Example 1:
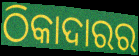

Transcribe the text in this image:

ଠିକାଦାରର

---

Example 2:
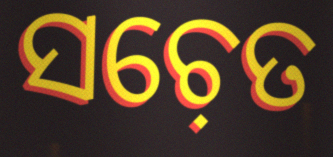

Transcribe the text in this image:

ସଚ଼େତ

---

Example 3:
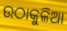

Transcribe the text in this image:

ଉଠାକୁଳିଆ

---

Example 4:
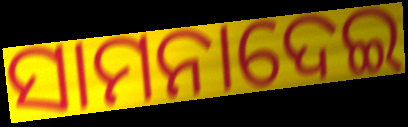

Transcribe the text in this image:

ସାମନାଦେଇ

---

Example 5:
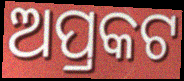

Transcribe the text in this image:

ଅପ୍ରକଟ